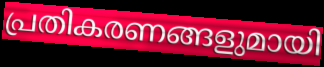
പ്രതികരണങ്ങളുമായി